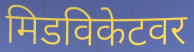
मिडविकेटवर